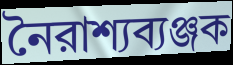
নৈরাশ্যব্যঞ্জক